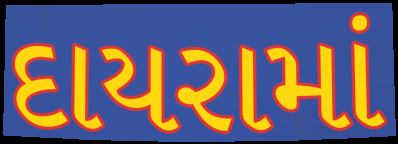
દાયરામાં